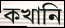
কখানি